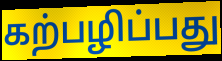
கற்பழிப்பது